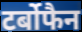
टर्बोफैन